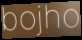
bojho